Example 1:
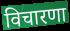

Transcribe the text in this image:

विचारणा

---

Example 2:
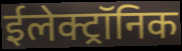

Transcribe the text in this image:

ईलेक्ट्रॉनिक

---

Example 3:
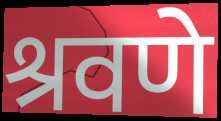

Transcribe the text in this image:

श्रवणे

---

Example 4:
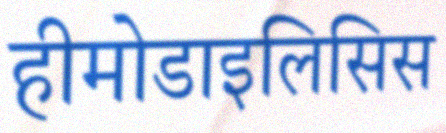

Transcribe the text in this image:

हीमोडाइलिसिस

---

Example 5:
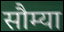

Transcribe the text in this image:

सौम्या